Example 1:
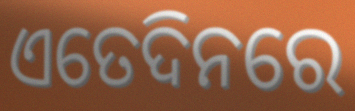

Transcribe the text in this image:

ଏତେଦିନରେ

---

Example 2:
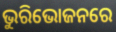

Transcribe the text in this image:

ଭୁରିଭୋଜନରେ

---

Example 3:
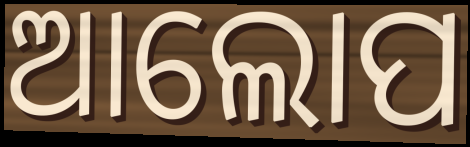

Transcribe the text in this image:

ଆଲୋପ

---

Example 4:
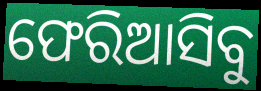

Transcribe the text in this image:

ଫେରିଆସିବୁ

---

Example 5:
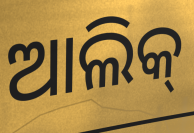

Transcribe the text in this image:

ଆଲିକ୍